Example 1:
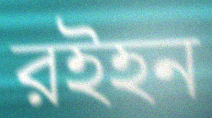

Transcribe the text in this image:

রইহন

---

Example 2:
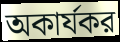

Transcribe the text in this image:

অকার্যকর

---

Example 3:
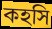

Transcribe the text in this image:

কহসি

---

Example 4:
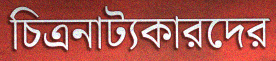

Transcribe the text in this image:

চিত্রনাট্যকারদের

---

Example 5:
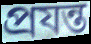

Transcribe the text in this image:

প্রযন্ত